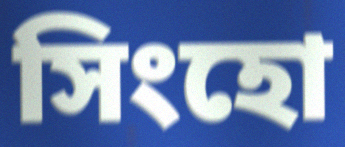
সিংহো